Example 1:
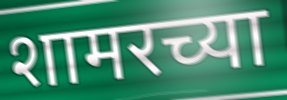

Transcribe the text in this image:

शामरच्या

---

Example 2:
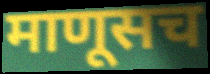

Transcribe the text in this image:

माणूसच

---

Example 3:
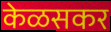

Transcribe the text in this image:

केळसकर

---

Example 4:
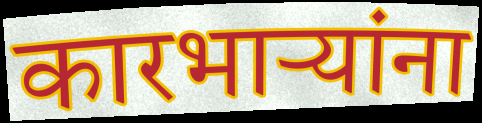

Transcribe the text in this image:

कारभाऱ्यांना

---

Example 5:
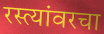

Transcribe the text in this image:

रस्त्यांवरचा